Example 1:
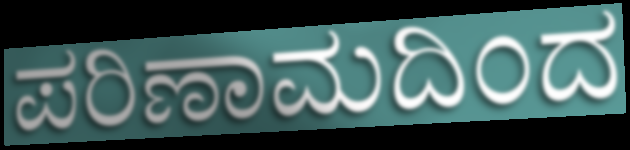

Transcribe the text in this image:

ಪರಿಣಾಮದಿಂದ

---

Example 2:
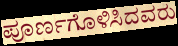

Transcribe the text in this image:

ಪೂರ್ಣಗೊಳಿಸಿದವರು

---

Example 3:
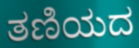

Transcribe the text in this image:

ತಣಿಯದ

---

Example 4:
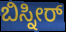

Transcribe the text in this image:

ಬಿಸ್ನೀರ್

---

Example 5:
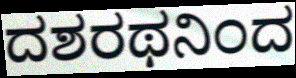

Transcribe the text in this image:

ದಶರಥನಿಂದ